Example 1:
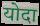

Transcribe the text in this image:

योदा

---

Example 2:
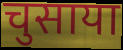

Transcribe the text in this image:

चुसाया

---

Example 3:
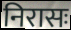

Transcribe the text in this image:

निरासः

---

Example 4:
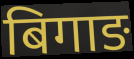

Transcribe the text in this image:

बिगाङ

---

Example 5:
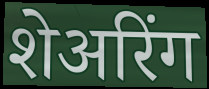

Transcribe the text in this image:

शेअरिंग